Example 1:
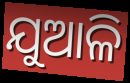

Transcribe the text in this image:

ଯୁଆଳି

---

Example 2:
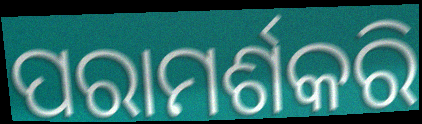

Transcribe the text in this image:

ପରାମର୍ଶକରି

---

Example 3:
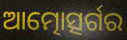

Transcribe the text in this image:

ଆତ୍ମୋତ୍ସର୍ଗର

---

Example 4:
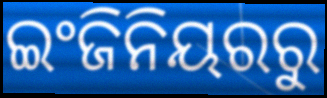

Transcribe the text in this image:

ଇଂଜିନିୟରରୁ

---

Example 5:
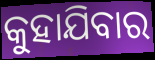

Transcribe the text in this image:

କୁହାଯିବାର